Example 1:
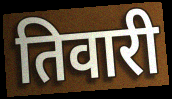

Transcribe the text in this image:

तिवारी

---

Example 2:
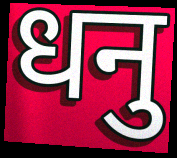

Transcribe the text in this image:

धनु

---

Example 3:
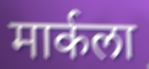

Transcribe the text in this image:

मार्कला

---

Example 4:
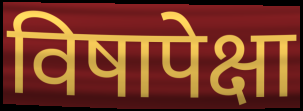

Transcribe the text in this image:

विषापेक्षा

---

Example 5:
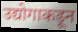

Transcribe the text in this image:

उद्योगाकडून